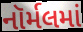
નૉર્મલમાં